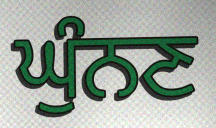
ਘੁੰਨਣ